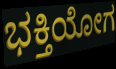
ಭಕ್ತಿಯೋಗ